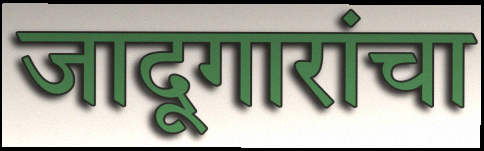
जादूगारांचा